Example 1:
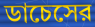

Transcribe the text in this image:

ডাচেসের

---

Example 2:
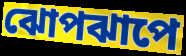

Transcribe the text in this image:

ঝোপঝাপে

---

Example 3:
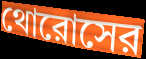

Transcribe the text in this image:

থোরোসের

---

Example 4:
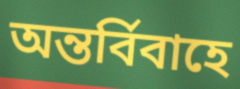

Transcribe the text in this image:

অন্তর্বিবাহে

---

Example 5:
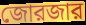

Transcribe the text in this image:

জোরজার